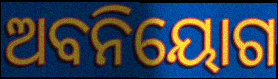
ଅବନିୟୋଗ